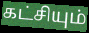
கட்சியும்